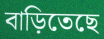
বাড়িতেছে